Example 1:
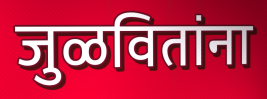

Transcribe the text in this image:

जुळवितांना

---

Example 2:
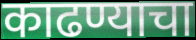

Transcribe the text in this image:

काढण्याचा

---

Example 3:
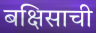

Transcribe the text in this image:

बक्षिसाची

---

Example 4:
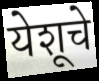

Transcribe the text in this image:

येशूचे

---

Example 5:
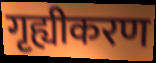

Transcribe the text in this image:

गृह्यीकरण